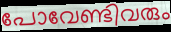
പോവേണ്ടിവരും